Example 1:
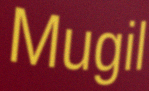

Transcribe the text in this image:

Mugil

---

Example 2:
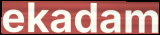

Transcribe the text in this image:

ekadam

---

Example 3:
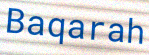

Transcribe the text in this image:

Baqarah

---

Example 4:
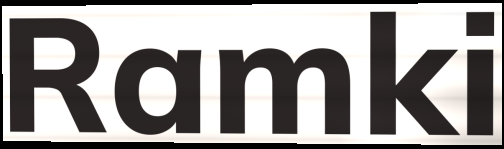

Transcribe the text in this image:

Ramki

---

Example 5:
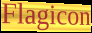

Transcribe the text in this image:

Flagicon